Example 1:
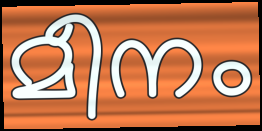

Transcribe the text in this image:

മീനം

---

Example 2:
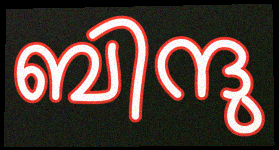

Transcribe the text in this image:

ബിന്ദു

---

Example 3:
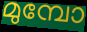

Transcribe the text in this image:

മുമ്പോ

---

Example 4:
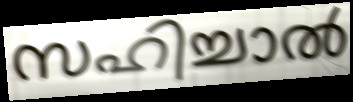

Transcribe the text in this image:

സഹിച്ചാൽ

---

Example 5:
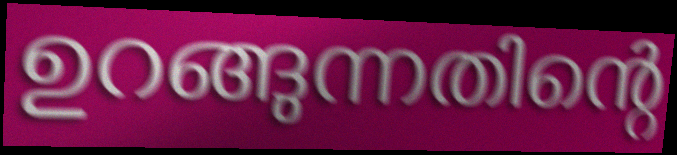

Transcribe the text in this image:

ഉറങ്ങുന്നതിന്റെ